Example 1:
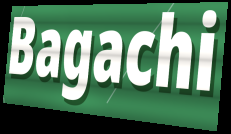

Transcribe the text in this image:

Bagachi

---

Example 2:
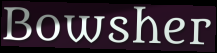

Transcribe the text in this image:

Bowsher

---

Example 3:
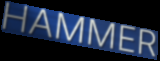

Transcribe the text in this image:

HAMMER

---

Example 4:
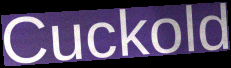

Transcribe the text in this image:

Cuckold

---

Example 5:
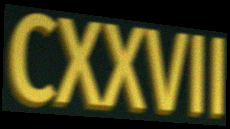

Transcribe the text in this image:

CXXVII